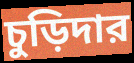
চুড়িদার